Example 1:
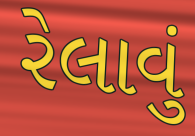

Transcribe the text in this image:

રેલાવું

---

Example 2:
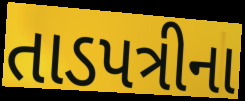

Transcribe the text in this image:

તાડપત્રીના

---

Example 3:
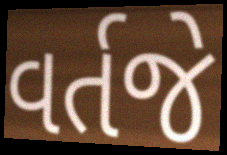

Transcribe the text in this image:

વર્તજે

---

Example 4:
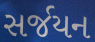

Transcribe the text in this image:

સર્જયન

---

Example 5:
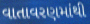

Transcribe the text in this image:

વાતાવરણમાંથી